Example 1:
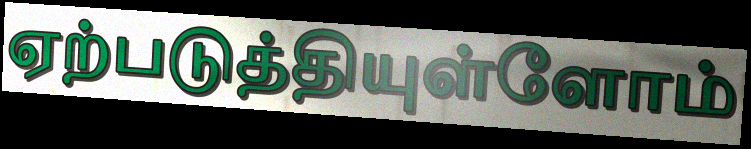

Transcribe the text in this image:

ஏற்படுத்தியுள்ளோம்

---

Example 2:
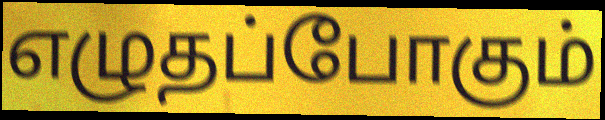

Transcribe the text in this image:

எழுதப்போகும்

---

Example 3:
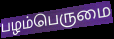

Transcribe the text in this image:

பழம்பெருமை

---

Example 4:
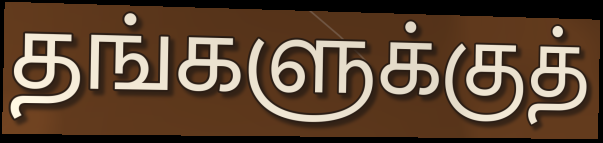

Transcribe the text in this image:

தங்களுக்குத்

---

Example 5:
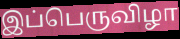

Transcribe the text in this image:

இப்பெருவிழா